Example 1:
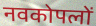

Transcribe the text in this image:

नवकोपलों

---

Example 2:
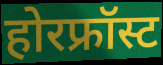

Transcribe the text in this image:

होरफ्रॉस्ट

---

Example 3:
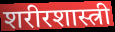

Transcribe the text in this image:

शरीरशास्त्री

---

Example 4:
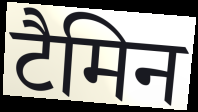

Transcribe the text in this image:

टैमिन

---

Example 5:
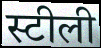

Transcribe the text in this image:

स्टीली